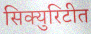
सिक्युरिटीत